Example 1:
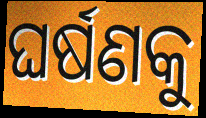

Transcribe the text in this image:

ଘର୍ଷଣକୁ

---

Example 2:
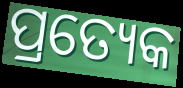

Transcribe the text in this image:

ପ୍ରତ୍ୟେକ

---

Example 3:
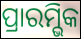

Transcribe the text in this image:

ପ୍ରାରମ୍ଭିକ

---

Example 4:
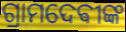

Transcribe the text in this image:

ଗ୍ରାମଦେଵୀଙ୍କ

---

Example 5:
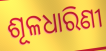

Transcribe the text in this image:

ଶୂଳଧାରିଣୀ